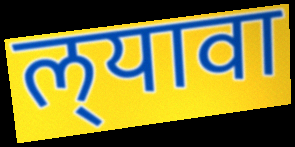
ल्यावा